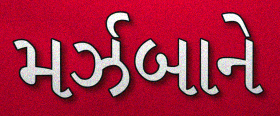
મર્ઝબાને